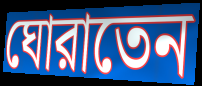
ঘোরাতেন